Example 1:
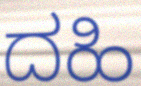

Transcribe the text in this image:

ದಹಿ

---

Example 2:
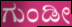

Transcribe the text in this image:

ಗುಂಡೀ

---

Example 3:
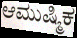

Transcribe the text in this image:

ಆಮುಷ್ಮಿಕ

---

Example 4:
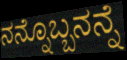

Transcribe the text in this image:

ನನ್ನೊಬ್ಬನನ್ನೆ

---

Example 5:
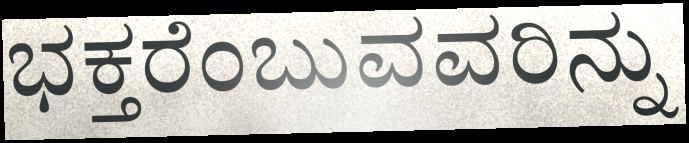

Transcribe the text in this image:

ಭಕ್ತರೆಂಬುವವರಿನ್ನು